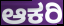
ಆಕರಿ